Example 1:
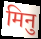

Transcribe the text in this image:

मिनु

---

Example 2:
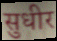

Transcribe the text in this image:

सुधीर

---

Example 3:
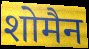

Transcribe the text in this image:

शोमैन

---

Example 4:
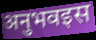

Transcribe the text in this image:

अनुभवइस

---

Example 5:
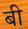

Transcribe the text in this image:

बी